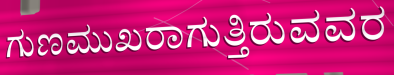
ಗುಣಮುಖರಾಗುತ್ತಿರುವವರ